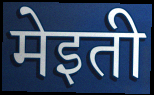
मेइती